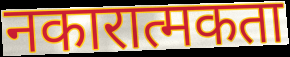
नकारात्मकता